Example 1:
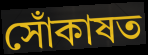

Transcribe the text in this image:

সোঁকাষত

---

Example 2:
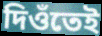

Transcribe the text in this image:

দিওঁতেই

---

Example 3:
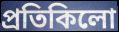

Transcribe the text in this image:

প্ৰতিকিলো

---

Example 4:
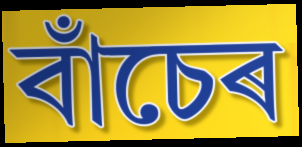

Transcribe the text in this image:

বাঁচেৰ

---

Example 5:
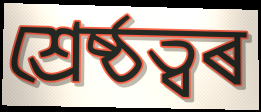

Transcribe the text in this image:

শ্ৰেষ্ঠত্বৰ